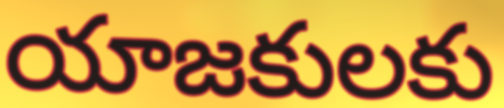
యాజకులకు